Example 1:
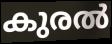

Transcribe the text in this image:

കുരൽ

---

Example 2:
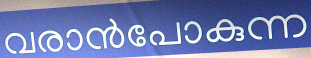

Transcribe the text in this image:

വരാൻപോകുന്ന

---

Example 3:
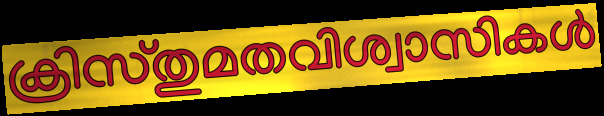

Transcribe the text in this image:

ക്രിസ്തുമതവിശ്വാസികൾ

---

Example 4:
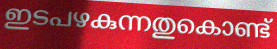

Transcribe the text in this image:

ഇടപഴകുന്നതുകൊണ്ട്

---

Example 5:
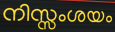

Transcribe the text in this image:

നിസ്സംശയം